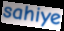
sahiye